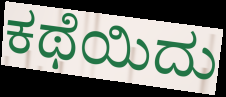
ಕಥೆಯಿದು